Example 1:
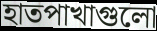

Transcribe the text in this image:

হাতপাখাগুলো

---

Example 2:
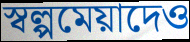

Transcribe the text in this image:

স্বল্পমেয়াদেও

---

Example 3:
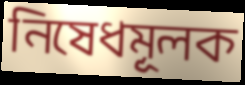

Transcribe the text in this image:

নিষেধমূলক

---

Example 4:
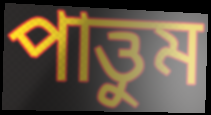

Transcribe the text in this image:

পাত্তুম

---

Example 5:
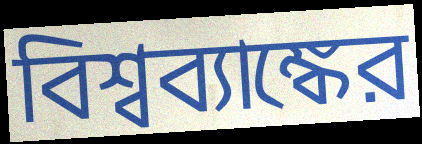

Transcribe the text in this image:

বিশ্বব্যাঙ্কের